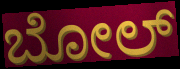
ಬೋಲ್